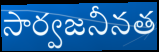
సార్వజనీనత